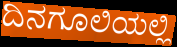
ದಿನಗೂಲಿಯಲ್ಲಿ